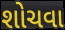
શોચવા